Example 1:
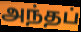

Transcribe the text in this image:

அந்தப்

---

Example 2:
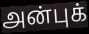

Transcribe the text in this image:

அன்புக்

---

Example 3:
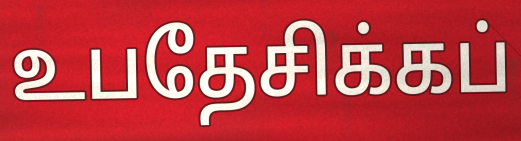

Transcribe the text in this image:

உபதேசிக்கப்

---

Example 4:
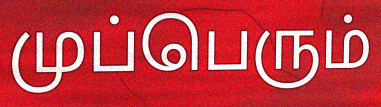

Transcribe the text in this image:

முப்பெரும்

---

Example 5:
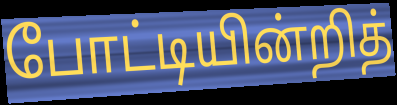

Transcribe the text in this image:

போட்டியின்றித்